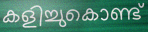
കളിച്ചുകൊണ്ട്